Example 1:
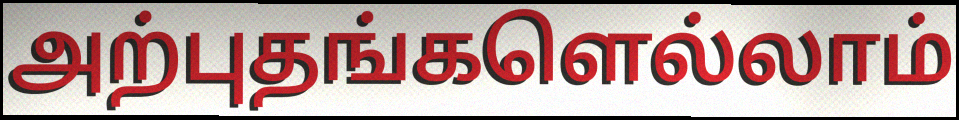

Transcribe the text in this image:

அற்புதங்களெல்லாம்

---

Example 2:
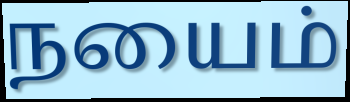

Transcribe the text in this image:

நயைம்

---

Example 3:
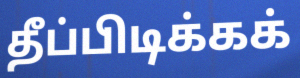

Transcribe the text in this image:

தீப்பிடிக்கக்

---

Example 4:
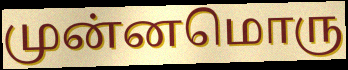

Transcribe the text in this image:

முன்னமொரு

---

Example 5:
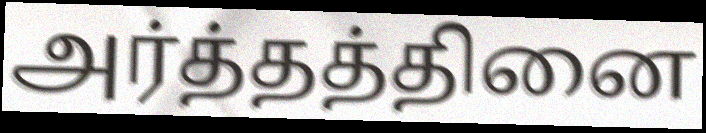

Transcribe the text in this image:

அர்த்தத்தினை